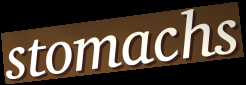
stomachs